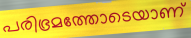
പരിഭ്രമത്തോടെയാണ്